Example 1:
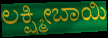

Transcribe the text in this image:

ಲಕ್ಷ್ಮೀಬಾಯಿ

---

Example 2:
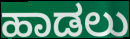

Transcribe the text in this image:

ಹಾಡಲು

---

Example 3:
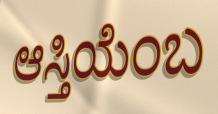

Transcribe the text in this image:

ಆಸ್ತಿಯೆಂಬ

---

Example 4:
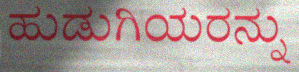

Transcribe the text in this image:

ಹುಡುಗಿಯರನ್ನು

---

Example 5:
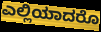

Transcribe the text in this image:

ಎಲ್ಲಿಯಾದರೊ